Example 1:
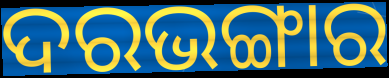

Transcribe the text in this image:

ଦରଭଙ୍ଗାର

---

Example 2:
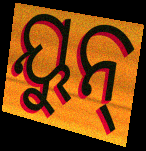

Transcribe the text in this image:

ୟୁନ୍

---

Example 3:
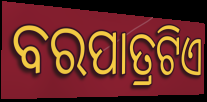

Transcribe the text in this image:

ବରପାତ୍ରଟିଏ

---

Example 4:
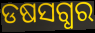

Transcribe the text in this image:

ଡଷସଗ୍ଧର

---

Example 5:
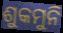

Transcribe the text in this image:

ଶୁକମୁନି